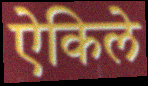
ऐकिले